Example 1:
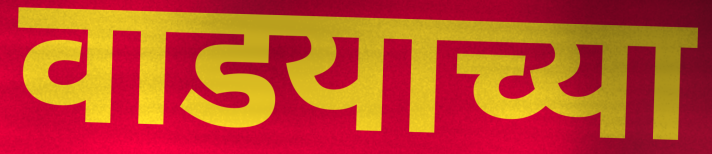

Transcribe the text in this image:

वाडयाच्या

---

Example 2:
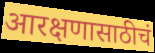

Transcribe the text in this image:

आरक्षणासाठीचं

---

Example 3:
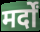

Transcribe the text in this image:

मर्दों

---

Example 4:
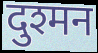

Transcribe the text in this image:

दुश्मन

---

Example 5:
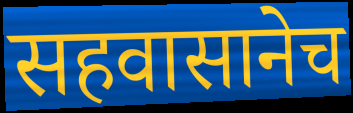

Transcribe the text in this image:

सहवासानेच